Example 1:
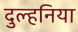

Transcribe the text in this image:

दुल्हनिया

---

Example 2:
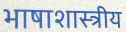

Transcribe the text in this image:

भाषाशास्त्रीय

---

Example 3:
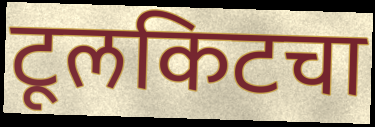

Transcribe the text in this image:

टूलकिटचा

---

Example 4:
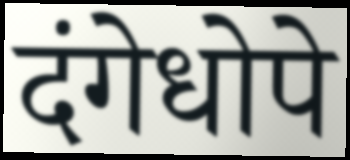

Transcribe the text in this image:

दंगेधोपे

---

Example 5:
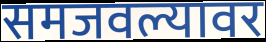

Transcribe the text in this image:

समजवल्यावर